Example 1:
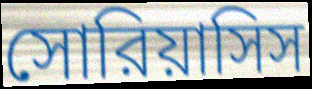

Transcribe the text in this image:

সোরিয়াসিস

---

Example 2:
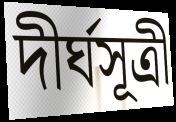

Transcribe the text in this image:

দীর্ঘসূত্রী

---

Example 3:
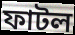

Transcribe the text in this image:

ফাটল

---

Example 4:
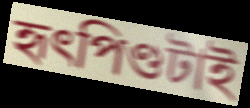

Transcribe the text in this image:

হৃৎপিণ্ডটাই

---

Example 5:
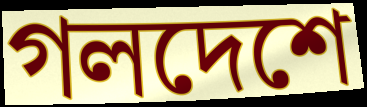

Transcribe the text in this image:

গলদেশে